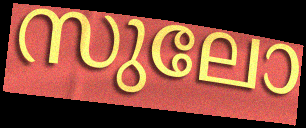
സുലോ